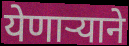
येणाऱ्याने